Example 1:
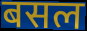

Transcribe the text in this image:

बसल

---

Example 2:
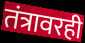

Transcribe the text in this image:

तंत्रावरही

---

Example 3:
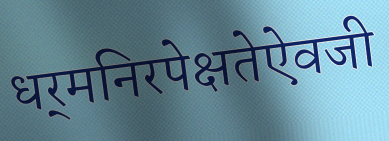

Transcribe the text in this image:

धर्मनिरपेक्षतेऐवजी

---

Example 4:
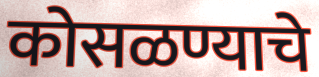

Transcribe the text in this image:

कोसळण्याचे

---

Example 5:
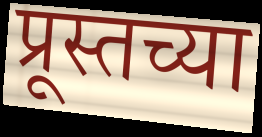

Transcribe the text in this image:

प्रूस्तच्या